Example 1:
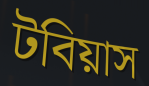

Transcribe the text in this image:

টবিয়াস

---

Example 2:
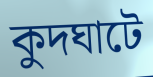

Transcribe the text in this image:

কুদঘাটে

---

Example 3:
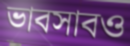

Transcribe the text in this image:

ভাবসাবও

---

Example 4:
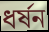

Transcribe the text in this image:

ধর্ষন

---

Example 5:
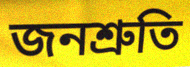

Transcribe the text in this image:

জনশ্রুতি